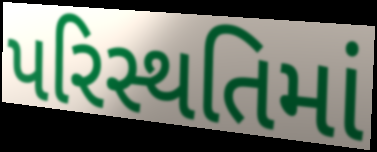
પરિસ્થતિમાં